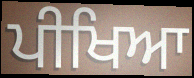
ਪੀਖਿਆ